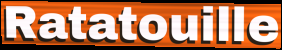
Ratatouille